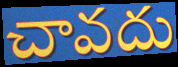
చావదు